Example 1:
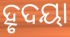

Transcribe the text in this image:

ହୃଦୟା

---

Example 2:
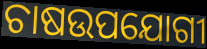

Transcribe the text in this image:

ଚାଷଉପଯୋଗୀ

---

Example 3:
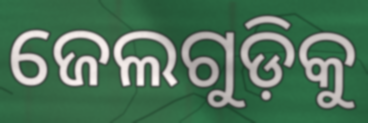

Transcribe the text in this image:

ଜେଲଗୁଡ଼ିକୁ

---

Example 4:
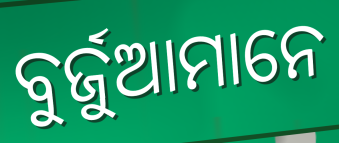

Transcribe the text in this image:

ବୁର୍ଜୁଆମାନେ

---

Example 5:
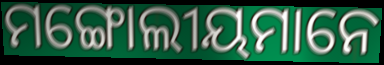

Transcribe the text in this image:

ମଙ୍ଗୋଲୀୟମାନେ